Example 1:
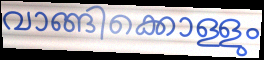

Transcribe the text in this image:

വാങ്ങിക്കൊള്ളും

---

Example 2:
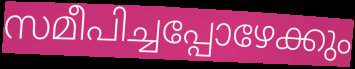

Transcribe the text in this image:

സമീപിച്ചപ്പോഴേക്കും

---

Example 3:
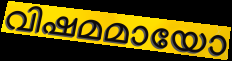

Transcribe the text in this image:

വിഷമമായോ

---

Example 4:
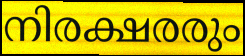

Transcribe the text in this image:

നിരക്ഷരരും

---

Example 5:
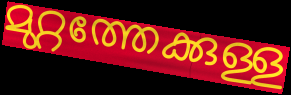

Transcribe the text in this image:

മുറ്റത്തേക്കുള്ള